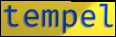
tempel